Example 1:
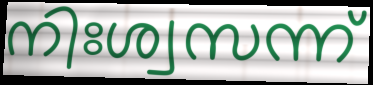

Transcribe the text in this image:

നിഃശ്വസന്ന്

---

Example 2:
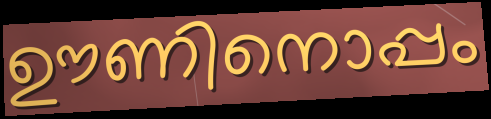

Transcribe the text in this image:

ഊണിനൊപ്പം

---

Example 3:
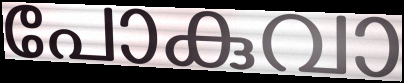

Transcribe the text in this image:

പോകുവാ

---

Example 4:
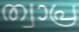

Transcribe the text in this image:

ത്വാപ്ര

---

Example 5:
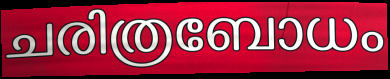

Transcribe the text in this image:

ചരിത്രബോധം